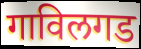
गाविलगड